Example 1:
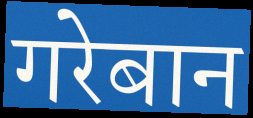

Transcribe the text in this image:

गरेबान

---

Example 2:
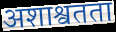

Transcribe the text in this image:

अशाश्वतता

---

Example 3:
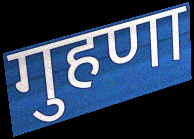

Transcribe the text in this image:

गुहणा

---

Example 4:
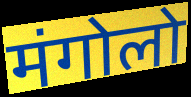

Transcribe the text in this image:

मंगोलो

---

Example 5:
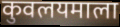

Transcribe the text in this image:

कुवलयमाला